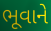
ભૂવાને